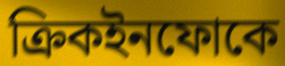
ক্রিকইনফোকে